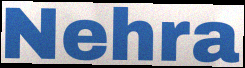
Nehra